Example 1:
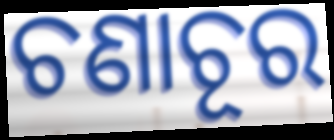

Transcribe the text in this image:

ଚଣାଚୂର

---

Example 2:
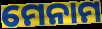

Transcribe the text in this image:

ମେନାମ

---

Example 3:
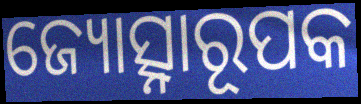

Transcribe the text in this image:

ଜ୍ୟୋତ୍ସ୍ନାରୂପକ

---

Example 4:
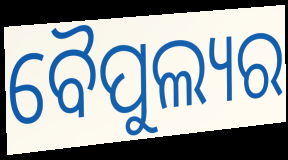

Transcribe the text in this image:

ବୈପୁଲ୍ୟର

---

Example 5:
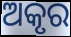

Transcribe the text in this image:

ଅକୃର